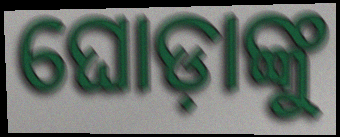
ଘୋଡ଼ାଙ୍କୁ